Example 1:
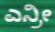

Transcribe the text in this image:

ಎನ್ರೀ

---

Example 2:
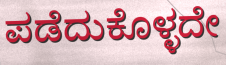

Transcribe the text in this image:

ಪಡೆದುಕೊಳ್ಳದೇ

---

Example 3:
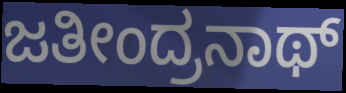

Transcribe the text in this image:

ಜತೀಂದ್ರನಾಥ್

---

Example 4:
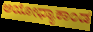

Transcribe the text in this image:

ಅಯೋಧ್ಯಾಕಾಂಡ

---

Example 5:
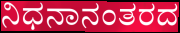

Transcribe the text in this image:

ನಿಧನಾನಂತರದ